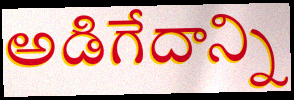
అడిగేదాన్ని